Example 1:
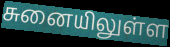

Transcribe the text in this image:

சுனையிலுள்ள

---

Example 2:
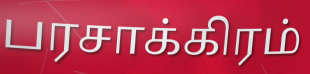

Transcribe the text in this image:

பரசாக்கிரம்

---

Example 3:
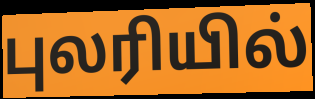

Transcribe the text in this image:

புலரியில்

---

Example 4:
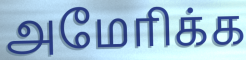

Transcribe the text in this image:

அமேரிக்க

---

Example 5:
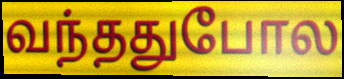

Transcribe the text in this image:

வந்ததுபோல